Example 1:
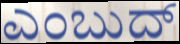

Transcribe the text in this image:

ಎಂಬುದ್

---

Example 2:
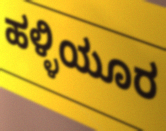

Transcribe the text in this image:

ಹಳ್ಳಿಯೂರ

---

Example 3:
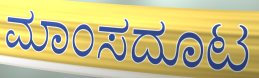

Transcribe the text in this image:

ಮಾಂಸದೂಟ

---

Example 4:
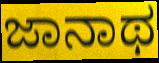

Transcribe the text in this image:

ಜಾನಾಥ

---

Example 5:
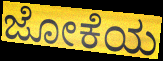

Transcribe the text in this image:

ಜೋಕೆಯ